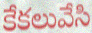
కేకలువేసి